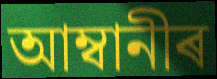
আম্বানীৰ